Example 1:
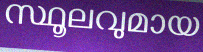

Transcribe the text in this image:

സ്ഥൂലവുമായ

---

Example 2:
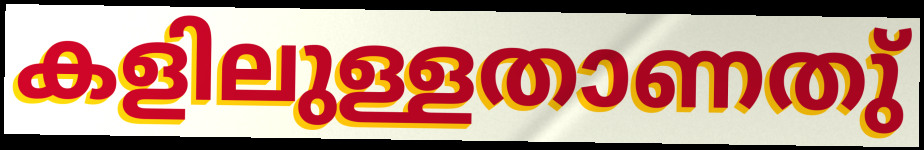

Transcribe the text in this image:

കളിലുള്ളതാണതു്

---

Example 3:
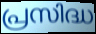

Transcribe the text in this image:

പ്രസിദ്ധ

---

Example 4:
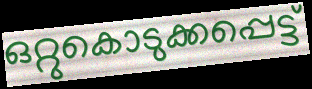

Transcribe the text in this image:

ഒറ്റുകൊടുക്കപ്പെട്ട്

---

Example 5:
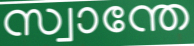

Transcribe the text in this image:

സ്വാന്തേ